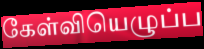
கேள்வியெழுப்ப